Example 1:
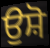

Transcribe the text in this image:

ਉਸ਼ੋ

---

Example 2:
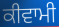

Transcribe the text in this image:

ਕੀਵਾਮੀ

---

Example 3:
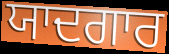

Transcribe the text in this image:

ਯਾਦਗਾਰ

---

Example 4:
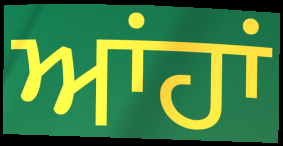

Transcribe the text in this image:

ਆਂਹਾਂ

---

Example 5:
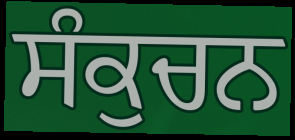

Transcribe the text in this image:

ਸੰਕੁਚਨ